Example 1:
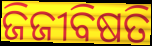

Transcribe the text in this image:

ଜିଜୀବିଷତି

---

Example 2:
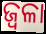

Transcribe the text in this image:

ଜ୍ଵଳା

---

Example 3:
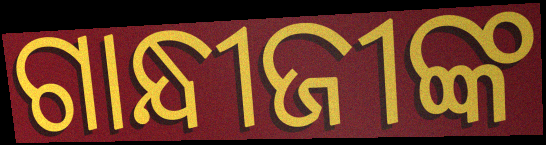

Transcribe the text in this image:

ଗାନ୍ଧୀଜୀଙ୍କ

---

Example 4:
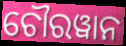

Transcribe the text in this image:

ଚୌରୱାନ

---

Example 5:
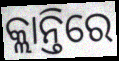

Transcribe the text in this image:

କ୍ଲାନ୍ତିରେ